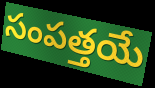
సంపత్తయే